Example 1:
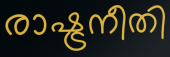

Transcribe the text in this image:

രാഷ്ട്രനീതി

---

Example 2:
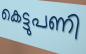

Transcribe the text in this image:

കെട്ടുപണി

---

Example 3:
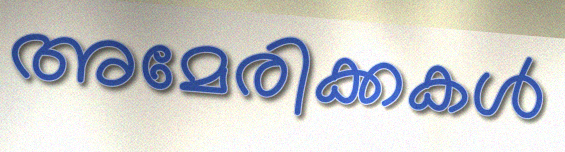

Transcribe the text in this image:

അമേരിക്കകൾ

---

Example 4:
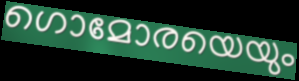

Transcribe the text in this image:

ഗൊമോരയെയും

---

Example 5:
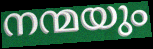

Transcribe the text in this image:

നന്മയും